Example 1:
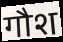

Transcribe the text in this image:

गौश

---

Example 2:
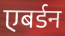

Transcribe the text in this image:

एबर्डन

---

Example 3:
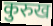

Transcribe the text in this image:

कुरुख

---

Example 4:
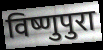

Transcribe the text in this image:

विष्णुपुरा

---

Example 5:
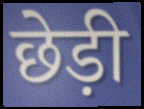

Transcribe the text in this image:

छेड़ी